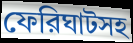
ফেরিঘাটসহ